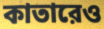
কাতারেও